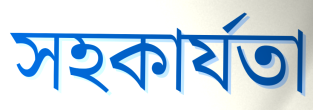
সহকাৰ্যতা